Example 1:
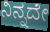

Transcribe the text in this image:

ನಿನ್ನದೇ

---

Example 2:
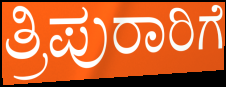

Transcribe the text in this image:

ತ್ರಿಪುರಾರಿಗೆ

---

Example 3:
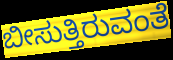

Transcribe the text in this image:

ಬೀಸುತ್ತಿರುವಂತೆ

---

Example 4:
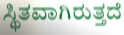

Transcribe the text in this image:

ಸ್ಥಿತವಾಗಿರುತ್ತದೆ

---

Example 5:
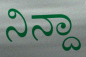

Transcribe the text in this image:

ನಿನ್ದಾ